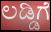
ಲಡ್ಡಿಗೆ